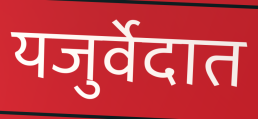
यजुर्वेदात